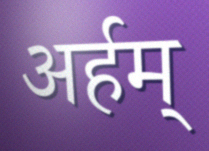
अर्हम्